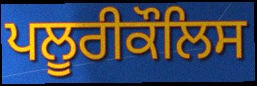
ਪਲੂਰੀਕੌਲਿਸ